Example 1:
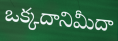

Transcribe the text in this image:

ఒక్కదానిమీదా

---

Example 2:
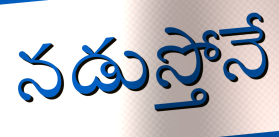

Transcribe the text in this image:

నడుస్తోనే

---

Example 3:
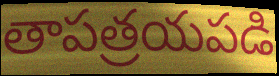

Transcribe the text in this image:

తాపత్రయపడి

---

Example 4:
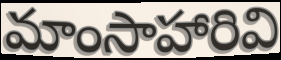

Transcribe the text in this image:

మాంసాహారివి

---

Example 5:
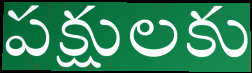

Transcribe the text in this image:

పక్షులకు